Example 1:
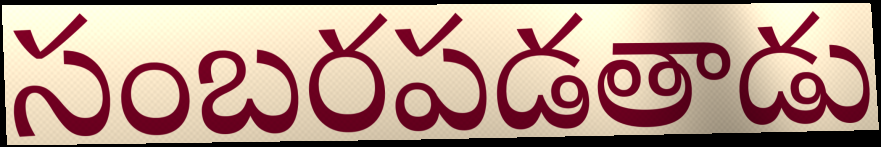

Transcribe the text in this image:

సంబరపడతాడు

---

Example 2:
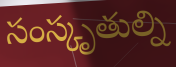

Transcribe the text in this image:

సంస్కృతుల్ని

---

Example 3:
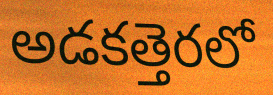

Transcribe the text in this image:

అడకత్తెరలో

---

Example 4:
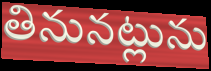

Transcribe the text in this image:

తినునట్లును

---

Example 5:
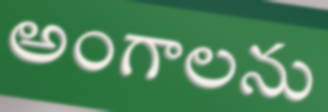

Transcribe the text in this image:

అంగాలను